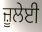
ਜ਼ੂਲੇਈ